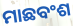
ମାଛବଂଶ